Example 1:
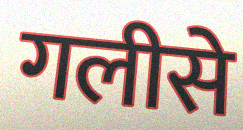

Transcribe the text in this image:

गलीसे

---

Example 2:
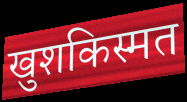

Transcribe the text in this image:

खुशकिस्मत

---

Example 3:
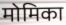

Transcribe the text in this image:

मोमिका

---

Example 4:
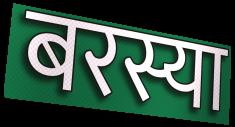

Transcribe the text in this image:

बरस्या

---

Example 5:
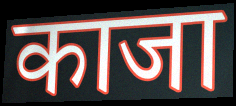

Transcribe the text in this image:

काजा